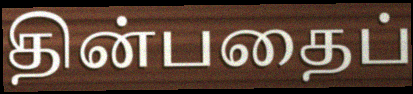
தின்பதைப்